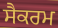
ਸੈਕਰਮ